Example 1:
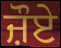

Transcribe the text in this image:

ਜ਼ੌਏ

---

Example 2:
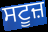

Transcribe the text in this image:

ਸਟੂਜ਼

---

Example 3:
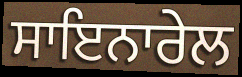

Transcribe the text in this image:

ਸਾਇਨਾਰੇਲ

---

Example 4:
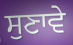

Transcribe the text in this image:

ਸੁਣਾਵੇ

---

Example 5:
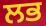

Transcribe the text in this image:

ਲਭ